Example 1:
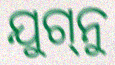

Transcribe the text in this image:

ଯୁଗ୍‌ନୁ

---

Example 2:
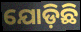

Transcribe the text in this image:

ଯୋଡ଼ିଛି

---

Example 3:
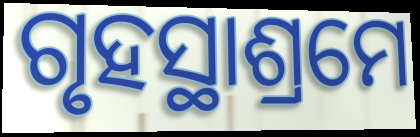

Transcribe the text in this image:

ଗୃହସ୍ଥାଶ୍ରମେ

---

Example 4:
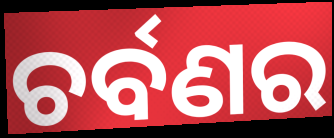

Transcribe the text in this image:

ଚର୍ବଣର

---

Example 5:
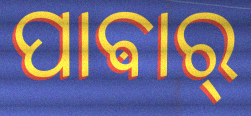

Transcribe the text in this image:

ପାଵାର୍